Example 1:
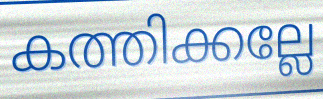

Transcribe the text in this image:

കത്തിക്കല്ലേ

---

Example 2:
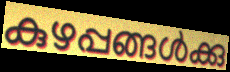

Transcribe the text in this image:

കുഴപ്പങ്ങൾക്കു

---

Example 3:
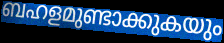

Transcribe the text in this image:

ബഹളമുണ്ടാക്കുകയും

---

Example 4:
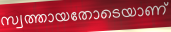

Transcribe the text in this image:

സ്വത്തായതോടെയാണ്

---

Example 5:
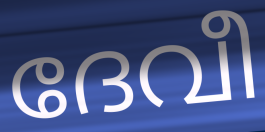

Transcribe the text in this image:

ദേവീ